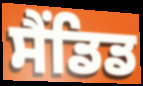
ਸੈਂਡਿਡ